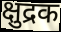
क्षुद्रक